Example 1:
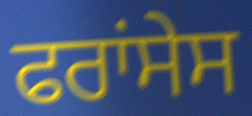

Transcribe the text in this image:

ਫਰਾਂਸੇਸ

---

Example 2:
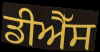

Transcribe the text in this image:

ਡੀਐੱਸ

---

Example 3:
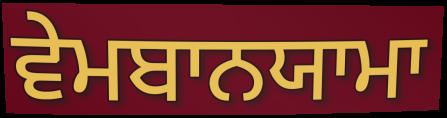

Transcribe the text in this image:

ਵੇਮਬਾਨਯਾਮਾ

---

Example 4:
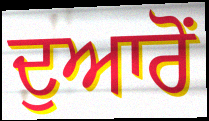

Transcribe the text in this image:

ਦੁਆਰੋਂ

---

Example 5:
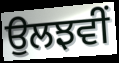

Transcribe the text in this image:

ਉਲਝਵੀਂ